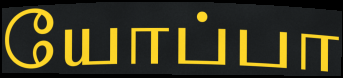
யோப்பா